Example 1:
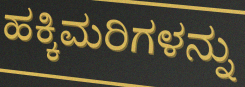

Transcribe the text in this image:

ಹಕ್ಕಿಮರಿಗಳನ್ನು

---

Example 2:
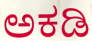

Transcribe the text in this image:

ಅಕಡಿ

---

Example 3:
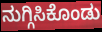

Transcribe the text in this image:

ನುಗ್ಗಿಸಿಕೊಂಡು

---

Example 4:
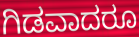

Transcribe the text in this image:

ಗಿಡವಾದರೂ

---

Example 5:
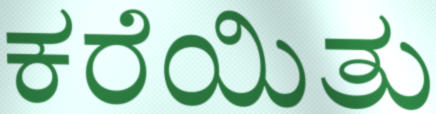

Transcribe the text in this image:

ಕರೆಯಿತು